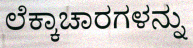
ಲೆಕ್ಕಾಚಾರಗಳನ್ನು